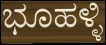
ಭೂಹಳ್ಳಿ